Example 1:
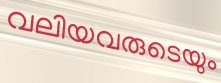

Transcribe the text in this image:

വലിയവരുടെയും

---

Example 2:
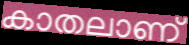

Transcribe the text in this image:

കാതലാണ്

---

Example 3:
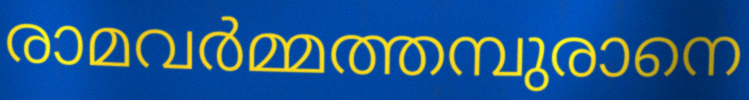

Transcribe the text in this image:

രാമവർമ്മത്തമ്പുരാനെ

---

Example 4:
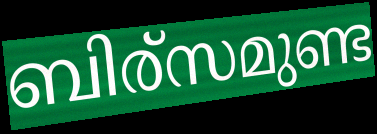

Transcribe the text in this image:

ബിര്സമുണ്ട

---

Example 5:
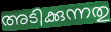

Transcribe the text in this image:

അടിക്കുന്നതു